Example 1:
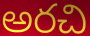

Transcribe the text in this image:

అరచి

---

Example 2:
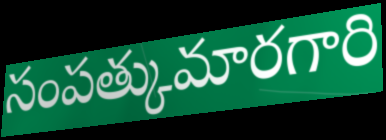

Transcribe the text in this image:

సంపత్కుమారగారి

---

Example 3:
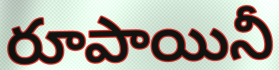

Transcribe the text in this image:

రూపాయినీ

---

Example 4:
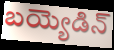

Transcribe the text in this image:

బయ్యెడిన్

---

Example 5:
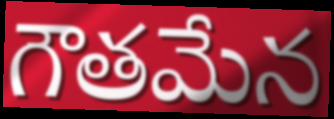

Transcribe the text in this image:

గౌతమేన